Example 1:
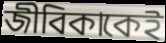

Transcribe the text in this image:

জীবিকাকেই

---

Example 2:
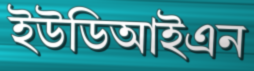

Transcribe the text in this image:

ইউডিআইএন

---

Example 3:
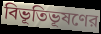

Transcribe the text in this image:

বিভূতিভূষণের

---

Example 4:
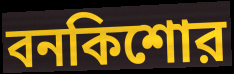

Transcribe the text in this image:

বনকিশোর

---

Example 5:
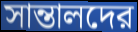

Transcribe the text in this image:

সান্তালদের